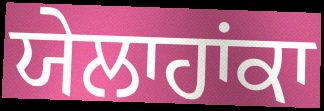
ਯੇਲਾਹਾਂਕਾ